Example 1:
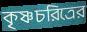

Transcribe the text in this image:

কৃষ্ণচরিত্রের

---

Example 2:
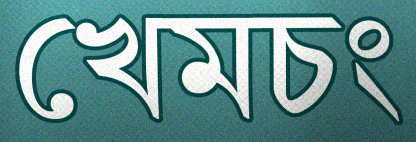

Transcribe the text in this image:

খেমচং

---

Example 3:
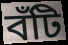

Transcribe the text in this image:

বঁটি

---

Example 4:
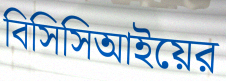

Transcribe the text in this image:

বিসিসিআইয়ের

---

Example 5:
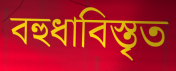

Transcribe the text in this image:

বহুধাবিস্তৃত